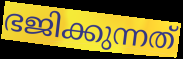
ഭജിക്കുന്നത്